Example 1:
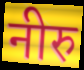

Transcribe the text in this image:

नीरु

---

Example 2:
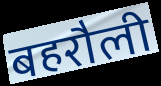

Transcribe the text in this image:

बहरौली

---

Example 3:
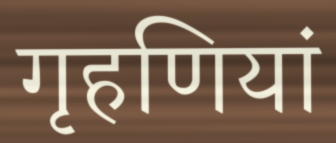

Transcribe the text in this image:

गृहणियां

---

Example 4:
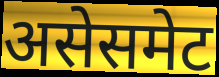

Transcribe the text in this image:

असेसमेट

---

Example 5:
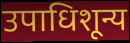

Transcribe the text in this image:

उपाधिशून्य